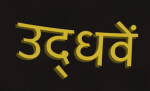
उद्धवें